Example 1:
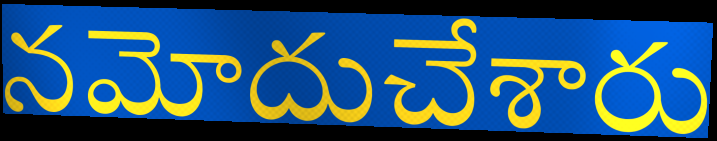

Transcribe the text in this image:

నమోదుచేశారు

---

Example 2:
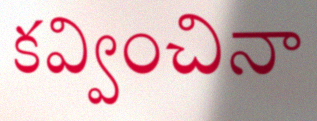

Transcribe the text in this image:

కవ్వించినా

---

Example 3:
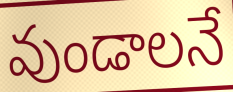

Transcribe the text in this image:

వుండాలనే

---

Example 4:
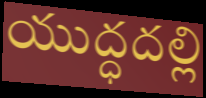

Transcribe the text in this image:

యుద్ధదల్లి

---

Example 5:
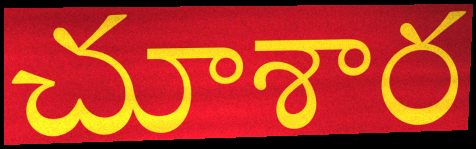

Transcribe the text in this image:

చూశార